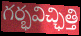
గర్భవిచ్ఛిత్తి